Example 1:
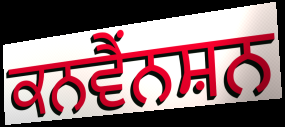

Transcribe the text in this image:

ਕਨਵੈਂਨਸ਼ਨ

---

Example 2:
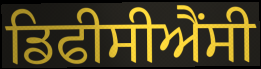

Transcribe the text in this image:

ਡਿਫੀਸੀਐਂਸੀ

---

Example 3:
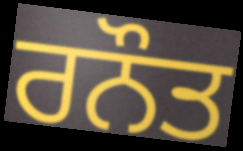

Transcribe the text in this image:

ਰਨੌਤ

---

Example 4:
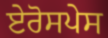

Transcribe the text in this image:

ਏਰੋਸਪੇਸ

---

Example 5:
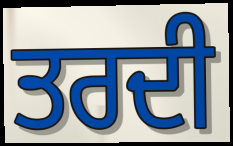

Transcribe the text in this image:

ਤਰਦੀ